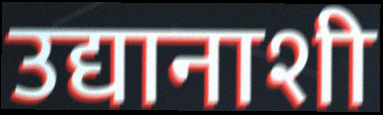
उद्यानाशी